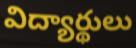
విద్యార్థులు